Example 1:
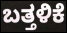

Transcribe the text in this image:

ಬತ್ತಳಿಕೆ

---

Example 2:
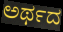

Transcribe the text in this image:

ಅರ್ಥದ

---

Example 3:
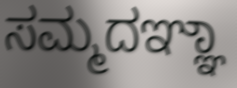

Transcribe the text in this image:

ಸಮ್ಮದಞ್ಞಾ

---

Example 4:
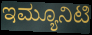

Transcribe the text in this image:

ಇಮ್ಯೂನಿಟಿ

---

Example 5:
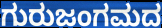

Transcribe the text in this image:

ಗುರುಜಂಗಮದ